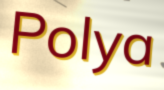
Polya